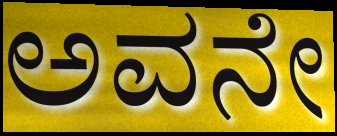
ಅವನೇ